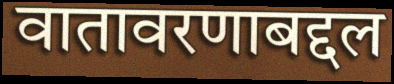
वातावरणाबद्दल